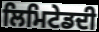
ਲਿਮਿਟੇਡਦੀ